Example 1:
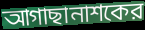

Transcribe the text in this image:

আগাছানাশকের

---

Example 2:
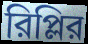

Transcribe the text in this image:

রিপ্লির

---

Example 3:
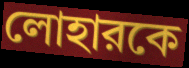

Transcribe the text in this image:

লোহারকে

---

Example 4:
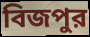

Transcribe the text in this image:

বিজপুর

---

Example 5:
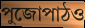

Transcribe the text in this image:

পুজোপাঠও